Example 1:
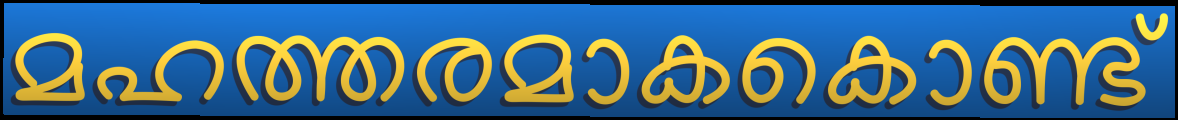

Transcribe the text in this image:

മഹത്തരമാകകൊണ്ട്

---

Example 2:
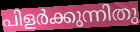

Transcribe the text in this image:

പിളർക്കുന്നിതു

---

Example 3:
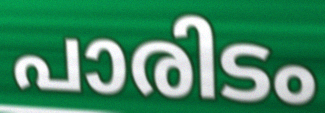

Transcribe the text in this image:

പാരിടം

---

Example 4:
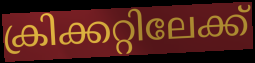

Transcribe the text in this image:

ക്രിക്കറ്റിലേക്ക്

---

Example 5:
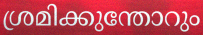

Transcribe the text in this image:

ശ്രമിക്കുന്തോറും